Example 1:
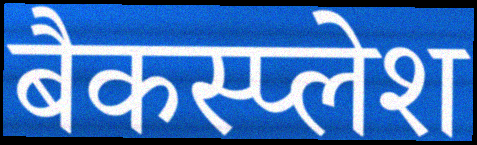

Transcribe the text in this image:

बैकस्प्लेश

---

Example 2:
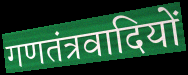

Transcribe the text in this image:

गणतंत्रवादियों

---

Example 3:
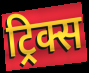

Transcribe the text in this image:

ट्रिक्स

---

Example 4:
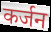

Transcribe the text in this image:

कर्जन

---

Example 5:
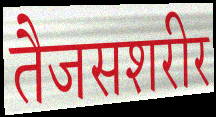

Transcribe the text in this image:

तैजसशरीर